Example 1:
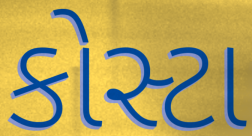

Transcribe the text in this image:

કોસ્ટા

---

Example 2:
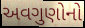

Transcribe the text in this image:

અવગુણોનો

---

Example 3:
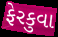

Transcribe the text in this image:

ફેરકુવા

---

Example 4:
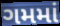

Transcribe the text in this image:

ગમમાં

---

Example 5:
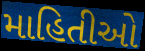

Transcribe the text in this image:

માહિતીઓ